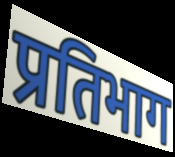
प्रतिभाग